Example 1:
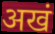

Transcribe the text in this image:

अखं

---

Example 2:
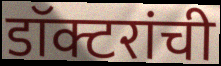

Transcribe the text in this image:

डॉक्टरांची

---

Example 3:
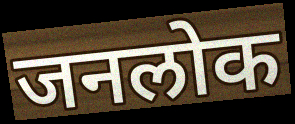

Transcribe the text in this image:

जनलोक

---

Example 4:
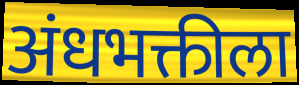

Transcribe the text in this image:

अंधभक्तीला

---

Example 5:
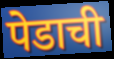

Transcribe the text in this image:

पेडाची